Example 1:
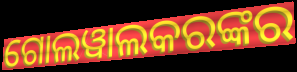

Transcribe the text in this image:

ଗୋଲୱାଲକରଙ୍କର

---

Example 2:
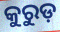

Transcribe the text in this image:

କୁରୁଡ଼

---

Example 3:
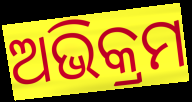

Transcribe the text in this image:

ଅଭିକ୍ରମ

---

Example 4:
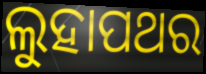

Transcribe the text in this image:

ଲୁହାପଥର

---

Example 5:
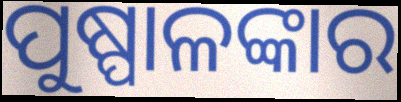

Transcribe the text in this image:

ପୁଷ୍ପାଳଙ୍କାର